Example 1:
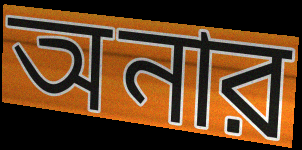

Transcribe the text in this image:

অনার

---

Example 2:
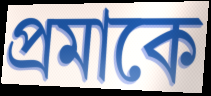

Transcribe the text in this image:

প্রমাকে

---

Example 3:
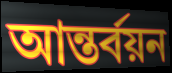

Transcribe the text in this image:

আন্তর্বয়ন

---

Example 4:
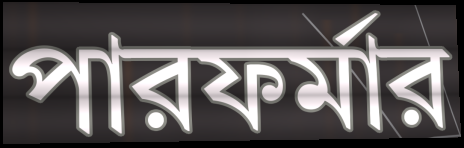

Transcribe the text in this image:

পারফর্মার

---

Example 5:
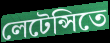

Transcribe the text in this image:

লেটেন্সিতে